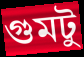
গুমটু